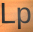
Lp